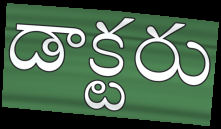
డాక్టరు